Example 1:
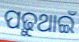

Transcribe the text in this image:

ପଢ଼ୁଥାଇଁ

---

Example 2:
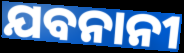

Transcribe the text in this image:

ଯବନାନୀ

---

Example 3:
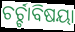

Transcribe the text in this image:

ଚର୍ଚ୍ଚାବିଷୟା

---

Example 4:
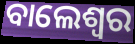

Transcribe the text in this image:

ବାଲେଶ୍ବର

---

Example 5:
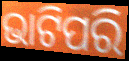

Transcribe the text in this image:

ଭାଟିପରି